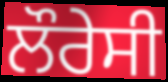
ਲੌਰੇਸੀ